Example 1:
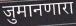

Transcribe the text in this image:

जुमानणारा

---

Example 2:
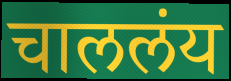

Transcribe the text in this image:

चाललंय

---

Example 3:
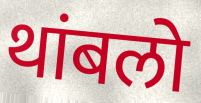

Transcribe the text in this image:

थांबलो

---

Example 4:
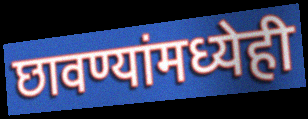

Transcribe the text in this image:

छावण्यांमध्येही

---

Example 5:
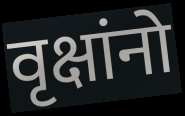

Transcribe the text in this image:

वृक्षांनो